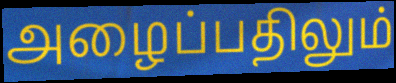
அழைப்பதிலும்